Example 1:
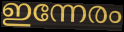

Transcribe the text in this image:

ഇന്നേരം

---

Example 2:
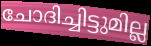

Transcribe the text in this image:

ചോദിച്ചിട്ടുമില്ല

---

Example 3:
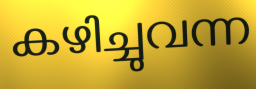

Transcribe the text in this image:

കഴിച്ചുവന്ന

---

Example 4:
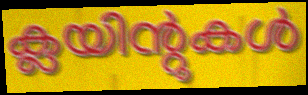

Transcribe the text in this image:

ക്ലയിന്റുകൾ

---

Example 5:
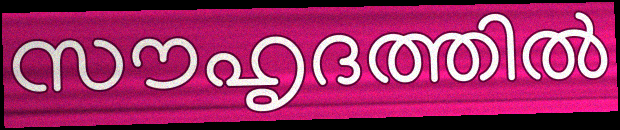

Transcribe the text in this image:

സൗഹൃദത്തിൽ